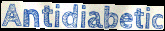
Antidiabetic